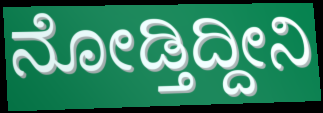
ನೋಡ್ತಿದ್ದೀನಿ